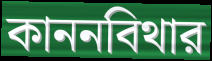
কাননবিথার